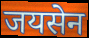
जयसेन